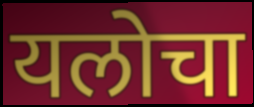
यलोचा